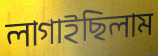
লাগাইছিলাম